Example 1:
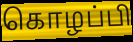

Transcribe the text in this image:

கொழப்பி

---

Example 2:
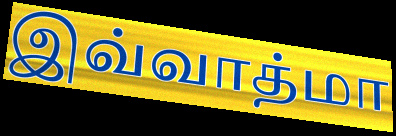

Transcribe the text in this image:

இவ்வாத்மா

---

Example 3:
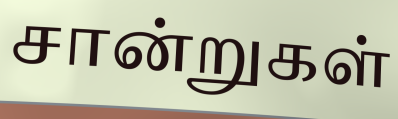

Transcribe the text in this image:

சான்றுகள்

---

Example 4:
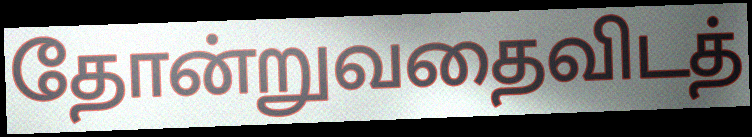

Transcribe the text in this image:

தோன்றுவதைவிடத்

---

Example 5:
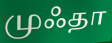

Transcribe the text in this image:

முஃதா